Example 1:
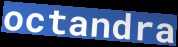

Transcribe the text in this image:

octandra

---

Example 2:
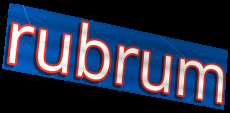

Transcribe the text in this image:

rubrum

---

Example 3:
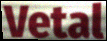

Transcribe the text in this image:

Vetal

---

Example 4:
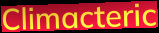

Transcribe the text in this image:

Climacteric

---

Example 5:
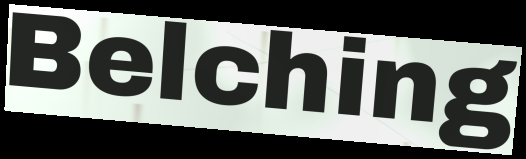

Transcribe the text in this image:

Belching